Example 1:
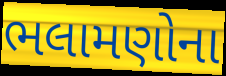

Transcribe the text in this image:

ભલામણોના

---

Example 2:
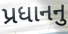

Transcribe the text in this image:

પ્રધાનનુ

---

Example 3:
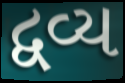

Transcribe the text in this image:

દ્વવ્ય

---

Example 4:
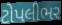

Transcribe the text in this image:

ટોપલીભર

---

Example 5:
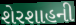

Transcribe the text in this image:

શેરશાહની